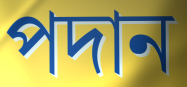
পদান